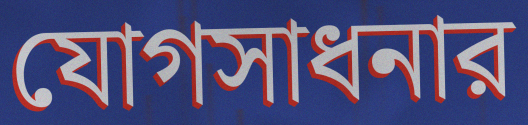
যোগসাধনার